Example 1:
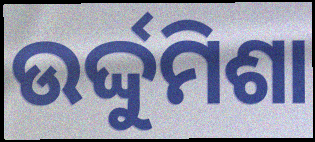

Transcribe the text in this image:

ଉର୍ଦ୍ଦୁମିଶା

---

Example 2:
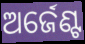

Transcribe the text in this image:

ଅର୍ଜେଣ୍ଟ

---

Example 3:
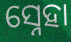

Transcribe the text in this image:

ସ୍ନେହା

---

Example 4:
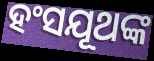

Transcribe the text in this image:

ହଂସଯୂଥଙ୍କ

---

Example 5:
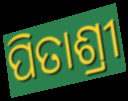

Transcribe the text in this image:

ପିତାଶ୍ରୀ